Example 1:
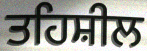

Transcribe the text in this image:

ਤਹਿਸ਼ੀਲ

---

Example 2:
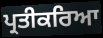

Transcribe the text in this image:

ਪ੍ਰਤੀਕਰਿਆ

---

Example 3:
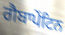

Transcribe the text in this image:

ਗੈਬਾਪੇਂਟਿਨ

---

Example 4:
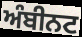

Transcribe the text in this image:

ਅੰਬੀਨਟ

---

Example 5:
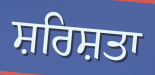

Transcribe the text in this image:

ਸ਼ਰਿਸ਼ਤਾ